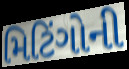
મિટિંગોની